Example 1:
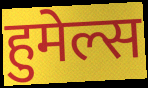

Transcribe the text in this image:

हुमेल्स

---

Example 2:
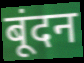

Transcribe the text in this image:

बूंदन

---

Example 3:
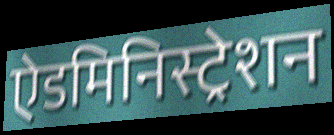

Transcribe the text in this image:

ऐडमिनिस्ट्रेशन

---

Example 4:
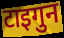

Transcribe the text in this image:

टाइगुन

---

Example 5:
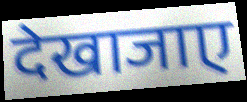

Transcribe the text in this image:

देखाजाए